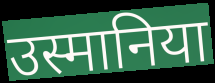
उस्मानिया